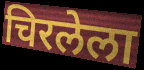
चिरलेला